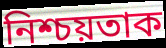
নিশ্চয়তাক